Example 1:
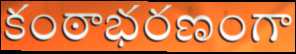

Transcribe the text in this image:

కంఠాభరణంగా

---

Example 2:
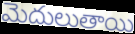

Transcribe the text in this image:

మెదులుతాయి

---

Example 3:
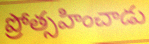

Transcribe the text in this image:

ప్రోత్సహించాడు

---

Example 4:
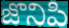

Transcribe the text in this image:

జొనిపి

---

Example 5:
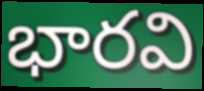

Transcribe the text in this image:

భారవి